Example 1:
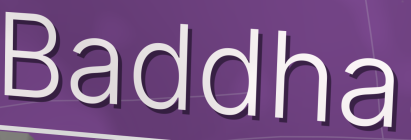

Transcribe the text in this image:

Baddha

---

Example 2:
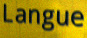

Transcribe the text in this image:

Langue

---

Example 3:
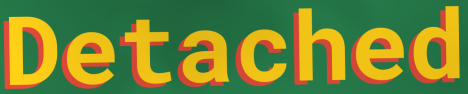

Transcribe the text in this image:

Detached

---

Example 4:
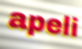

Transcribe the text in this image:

apeli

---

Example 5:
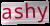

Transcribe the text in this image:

ashy